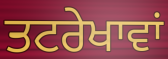
ਤਟਰੇਖਾਵਾਂ